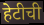
हेटीची